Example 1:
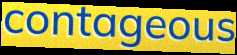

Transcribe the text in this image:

contageous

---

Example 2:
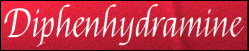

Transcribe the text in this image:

Diphenhydramine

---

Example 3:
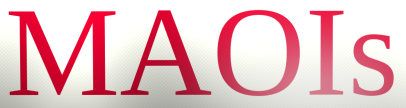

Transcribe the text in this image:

MAOIs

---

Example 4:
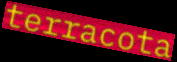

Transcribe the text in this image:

terracota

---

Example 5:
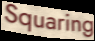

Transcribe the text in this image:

Squaring